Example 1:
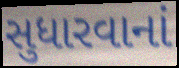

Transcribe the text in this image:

સુધારવાનાં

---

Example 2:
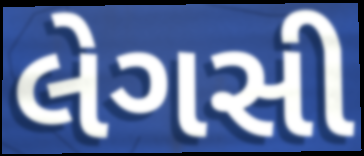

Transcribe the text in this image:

લેગસી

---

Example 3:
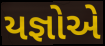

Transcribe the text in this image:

યજ્ઞોએ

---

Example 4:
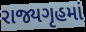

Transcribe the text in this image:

રાજ્યગૃહમાં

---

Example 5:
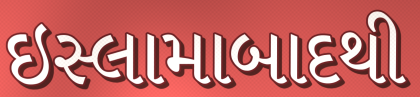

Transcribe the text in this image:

ઇસ્લામાબાદથી